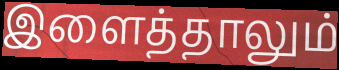
இளைத்தாலும்